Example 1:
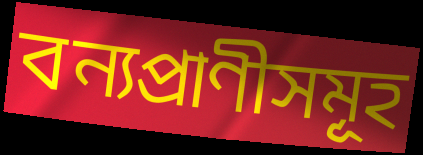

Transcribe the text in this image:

বন্যপ্ৰাণীসমূহ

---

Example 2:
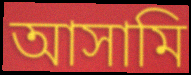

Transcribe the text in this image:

আসামি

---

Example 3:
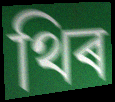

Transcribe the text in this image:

থিৰ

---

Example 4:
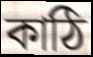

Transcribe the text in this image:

কাঠি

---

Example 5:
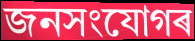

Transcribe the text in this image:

জনসংযোগৰ